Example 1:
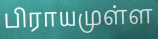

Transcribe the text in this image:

பிராயமுள்ள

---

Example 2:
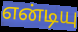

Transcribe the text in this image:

என்டியு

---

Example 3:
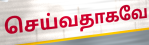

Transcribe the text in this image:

செய்வதாகவே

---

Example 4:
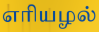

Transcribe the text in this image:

எரியழல்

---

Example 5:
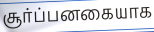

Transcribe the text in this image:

சூர்ப்பனகையாக